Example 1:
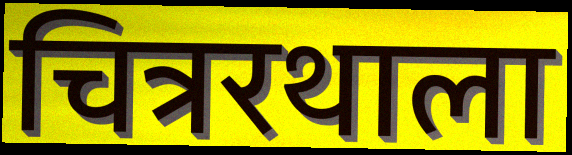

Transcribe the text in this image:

चित्ररथाला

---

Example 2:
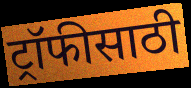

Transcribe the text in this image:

ट्रॉफीसाठी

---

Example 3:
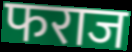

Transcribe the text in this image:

फराज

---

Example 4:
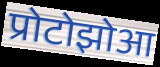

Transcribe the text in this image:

प्रोटोझोआ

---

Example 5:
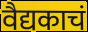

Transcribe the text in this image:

वैद्यकाचं